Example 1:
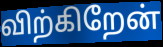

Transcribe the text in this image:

விற்கிறேன்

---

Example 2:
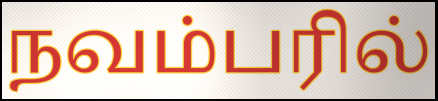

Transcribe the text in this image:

நவம்பரில்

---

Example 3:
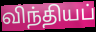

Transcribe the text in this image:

விந்தியப்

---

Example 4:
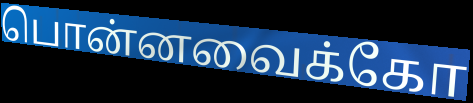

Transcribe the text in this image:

பொன்னவைக்கோ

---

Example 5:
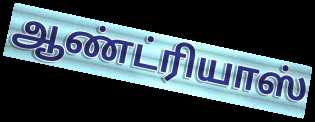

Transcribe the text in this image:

ஆண்ட்ரியாஸ்